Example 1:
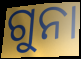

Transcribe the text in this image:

ଗୁନା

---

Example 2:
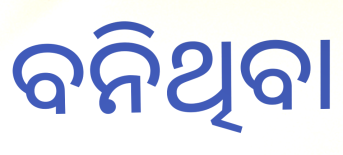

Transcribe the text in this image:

ବନିଥିବା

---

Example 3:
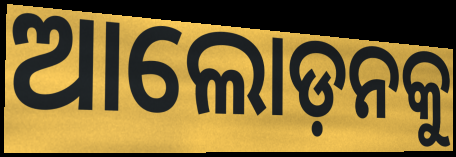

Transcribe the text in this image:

ଆଲୋଡ଼ନକୁ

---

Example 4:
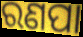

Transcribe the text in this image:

ରଣପା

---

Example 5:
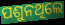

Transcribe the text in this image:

ପଶୁନଥିଲେ